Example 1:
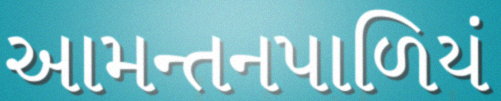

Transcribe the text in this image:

આમન્તનપાળિયં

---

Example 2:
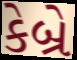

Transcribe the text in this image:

કેબ્રે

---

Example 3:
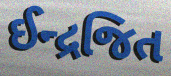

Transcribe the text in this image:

ઈન્દ્રજિત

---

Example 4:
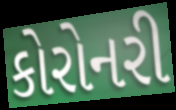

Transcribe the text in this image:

કોરોનરી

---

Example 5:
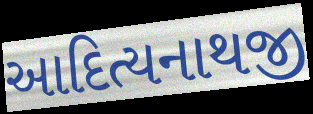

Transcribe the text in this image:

આદિત્યનાથજી